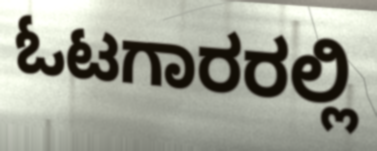
ಓಟಗಾರರಲ್ಲಿ